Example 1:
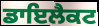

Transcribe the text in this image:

ਡਾਇਲੈਕਟ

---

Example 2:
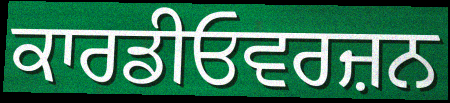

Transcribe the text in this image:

ਕਾਰਡੀਓਵਰਜ਼ਨ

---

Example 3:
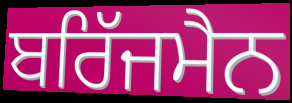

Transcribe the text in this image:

ਬਰਿੱਜਮੈਨ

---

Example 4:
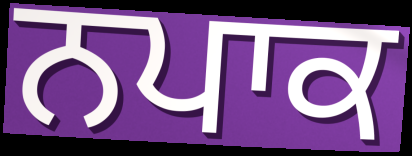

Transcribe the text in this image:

ਨਪਾਕ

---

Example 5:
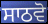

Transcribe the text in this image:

ਸਾਠਵੋ